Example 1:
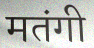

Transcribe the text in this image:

मतंगी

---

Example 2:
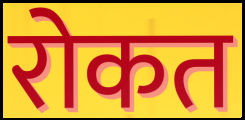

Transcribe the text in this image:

रोकत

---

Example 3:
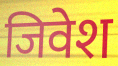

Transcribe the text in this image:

जिवेश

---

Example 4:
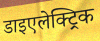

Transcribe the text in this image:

डाइएलेक्ट्रिक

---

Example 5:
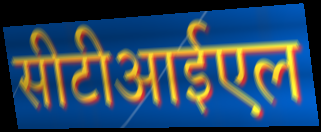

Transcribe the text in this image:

सीटीआईएल